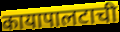
कायापालटाची